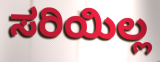
ಸರಿಯಿಲ್ಲ